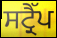
ਸਟ੍ਰੈੱਪ